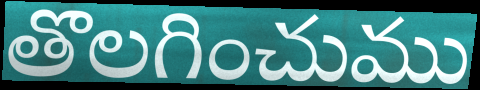
తొలగించుము